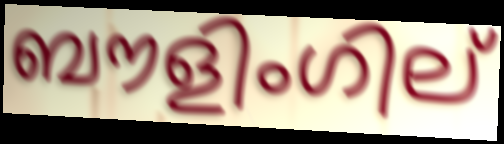
ബൗളിംഗില്